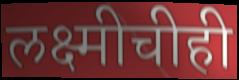
लक्ष्मीचीही